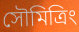
সৌমিত্রিং